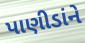
પાણીડાંને